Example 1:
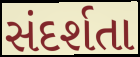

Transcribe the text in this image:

સંદર્શતા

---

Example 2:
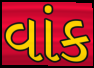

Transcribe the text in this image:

વાંક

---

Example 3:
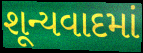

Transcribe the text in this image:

શૂન્યવાદમાં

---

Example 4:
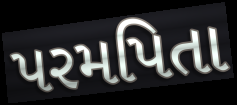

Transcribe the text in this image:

પરમપિતા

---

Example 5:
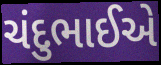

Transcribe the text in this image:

ચંદુભાઈએ